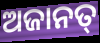
ଅଜାନତ୍